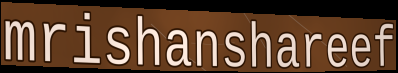
mrishanshareef